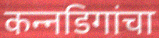
कन्नडिगांचा